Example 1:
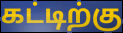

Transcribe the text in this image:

கட்டிற்கு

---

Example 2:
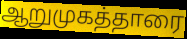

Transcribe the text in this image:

ஆறுமுகத்தாரை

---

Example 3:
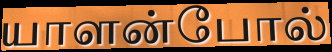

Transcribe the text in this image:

யாளன்போல்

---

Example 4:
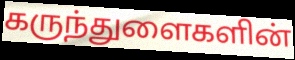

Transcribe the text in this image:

கருந்துளைகளின்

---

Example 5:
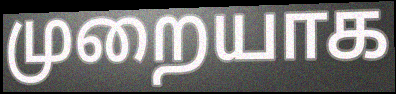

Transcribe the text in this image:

முறையாக